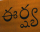
ఈర్ష్య